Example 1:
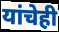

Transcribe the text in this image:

यांचेही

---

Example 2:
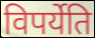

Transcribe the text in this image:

विपर्येति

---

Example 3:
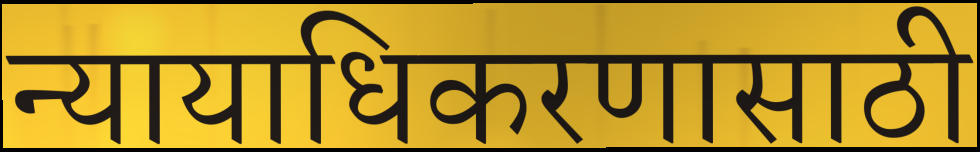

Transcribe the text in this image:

न्यायाधिकरणासाठी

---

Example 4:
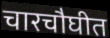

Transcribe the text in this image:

चारचौघीत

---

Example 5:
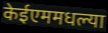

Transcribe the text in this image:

केईएममधल्या